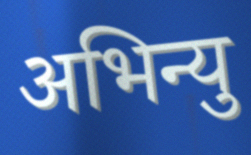
अभिन्यु